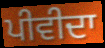
ਪੀਵੀਦਾ